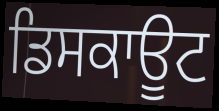
ਡਿਸਕਾਊਟ